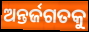
ଅନ୍ତର୍ଜଗତକୁ